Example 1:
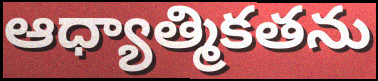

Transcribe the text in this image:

ఆధ్యాత్మికతను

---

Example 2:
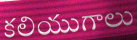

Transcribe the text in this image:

కలియుగాలు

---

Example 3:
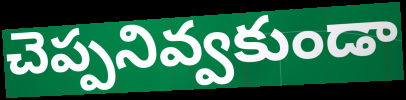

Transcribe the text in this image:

చెప్పనివ్వకుండా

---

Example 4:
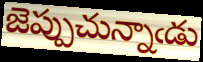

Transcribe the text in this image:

జెప్పుచున్నాఁడు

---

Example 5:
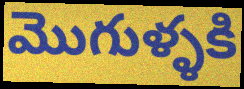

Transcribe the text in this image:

మొగుళ్ళకి